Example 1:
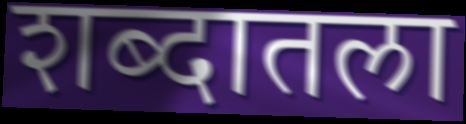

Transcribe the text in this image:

शब्दातला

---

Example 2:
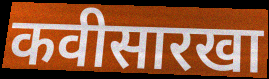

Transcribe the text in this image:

कवीसारखा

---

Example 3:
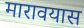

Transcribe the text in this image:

मारावयास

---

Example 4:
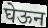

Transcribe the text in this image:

घेऊन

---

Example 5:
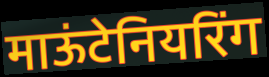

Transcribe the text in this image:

माऊंटेनियरिंग